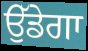
ਉੱਡੇਗਾ